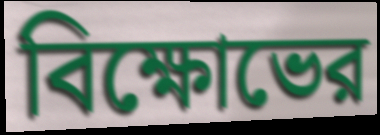
বিক্ষোভের